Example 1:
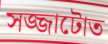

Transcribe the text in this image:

সজ্জাটোত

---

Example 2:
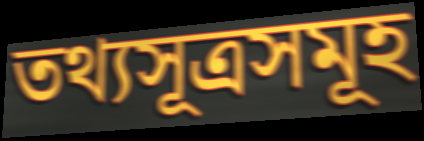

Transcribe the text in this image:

তথ্যসূত্ৰসমূহ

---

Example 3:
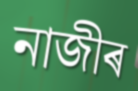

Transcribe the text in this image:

নাজীৰ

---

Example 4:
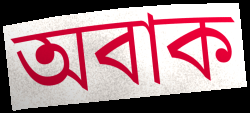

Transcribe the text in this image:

অবাক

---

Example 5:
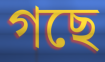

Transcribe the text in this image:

গছে